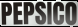
PEPSICO